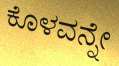
ಕೊಳವನ್ನೇ